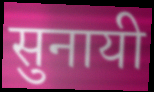
सुनायी